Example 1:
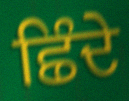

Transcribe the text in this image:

ਛਿੰਦੇ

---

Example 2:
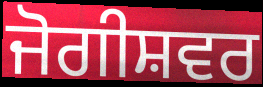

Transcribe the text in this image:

ਜੋਗੀਸ਼ਵਰ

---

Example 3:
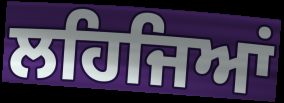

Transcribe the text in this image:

ਲਹਿਜਿਆਂ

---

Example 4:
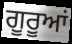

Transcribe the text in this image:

ਗੂਰੂਆਂ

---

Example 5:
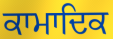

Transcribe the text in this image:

ਕਾਮਾਦਿਕ